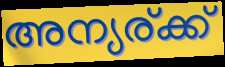
അന്യര്ക്ക്